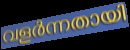
വളർന്നതായി